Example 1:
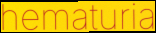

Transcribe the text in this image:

hematuria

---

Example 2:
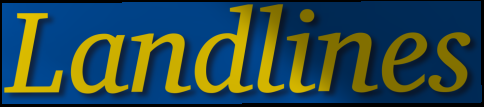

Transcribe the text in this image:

Landlines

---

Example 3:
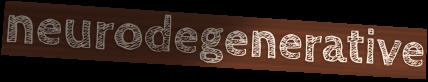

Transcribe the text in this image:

neurodegenerative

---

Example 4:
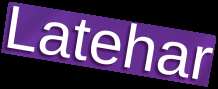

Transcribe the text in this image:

Latehar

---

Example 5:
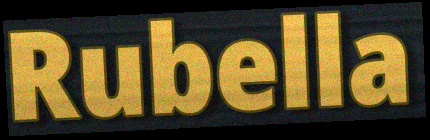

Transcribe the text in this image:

Rubella